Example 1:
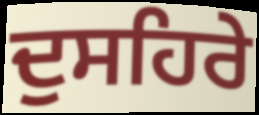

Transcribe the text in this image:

ਦੁਸਹਿਰੇ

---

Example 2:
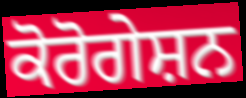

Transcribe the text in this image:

ਕੋਰੋਗੇਸ਼ਨ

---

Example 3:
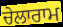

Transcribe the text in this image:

ਚੇਲਾਰਾਮ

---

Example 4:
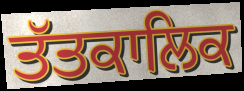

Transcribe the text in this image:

ਤੱਤਕਾਲਿਕ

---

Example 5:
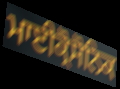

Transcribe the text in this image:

ਮਾਈਕ੍ਰੋਸੋਨਿਕ